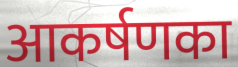
आकर्षणका